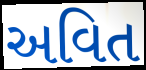
અવિત